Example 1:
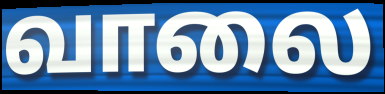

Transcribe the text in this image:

வாலை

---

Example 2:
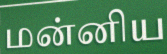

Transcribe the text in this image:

மன்னிய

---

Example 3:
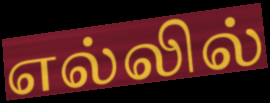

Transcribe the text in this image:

எல்லில்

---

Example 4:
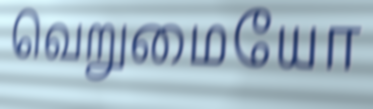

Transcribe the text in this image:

வெறுமையோ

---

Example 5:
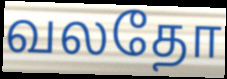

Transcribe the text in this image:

வலதோ